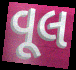
વૂલ